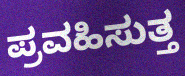
ಪ್ರವಹಿಸುತ್ತ